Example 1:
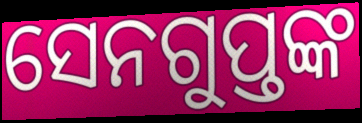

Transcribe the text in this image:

ସେନଗୁପ୍ତଙ୍କ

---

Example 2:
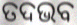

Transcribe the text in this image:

ତଦଭବ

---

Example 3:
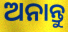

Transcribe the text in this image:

ଅନାନ୍ତୁ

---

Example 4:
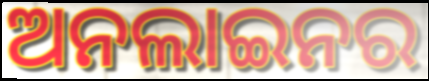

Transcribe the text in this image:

ଅନଲାଇନର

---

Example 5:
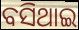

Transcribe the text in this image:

ବସିଥାଇ